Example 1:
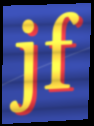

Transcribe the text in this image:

jf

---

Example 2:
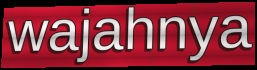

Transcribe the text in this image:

wajahnya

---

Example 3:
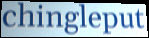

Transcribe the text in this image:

chingleput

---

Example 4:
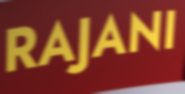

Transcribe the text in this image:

RAJANI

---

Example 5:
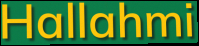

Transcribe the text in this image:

Hallahmi